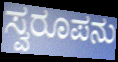
ಸ್ವರೂಪನು